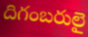
దిగంబరులై